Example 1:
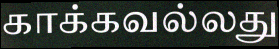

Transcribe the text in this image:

காக்கவல்லது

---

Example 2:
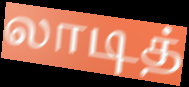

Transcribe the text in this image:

லாடித்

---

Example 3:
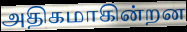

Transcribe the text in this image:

அதிகமாகின்றன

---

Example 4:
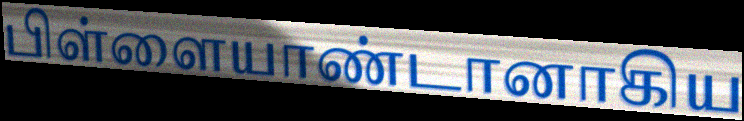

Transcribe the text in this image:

பிள்ளையாண்டானாகிய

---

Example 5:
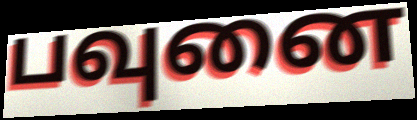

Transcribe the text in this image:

பவுனை